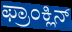
ಫ್ರಾಂಕ್ಲಿನ್